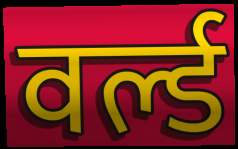
वर्ल्‍ड